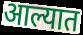
आल्यात